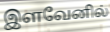
இளவேனில்